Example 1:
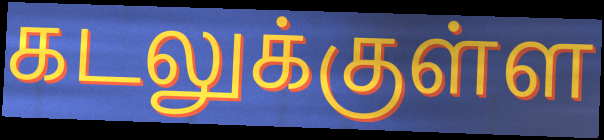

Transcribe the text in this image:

கடலுக்குள்ள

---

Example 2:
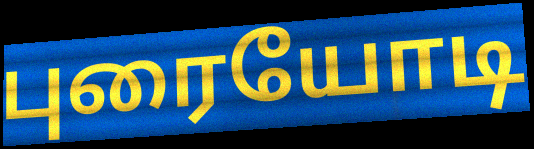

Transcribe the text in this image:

புரையோடி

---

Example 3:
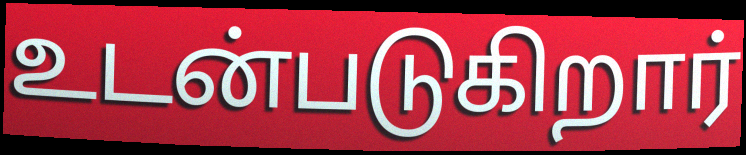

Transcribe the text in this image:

உடன்படுகிறார்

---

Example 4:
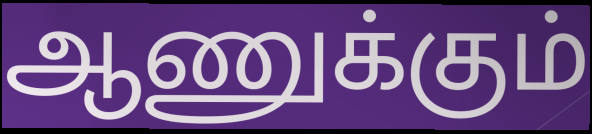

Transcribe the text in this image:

ஆணுக்கும்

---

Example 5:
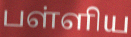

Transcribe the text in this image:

பள்ளிய